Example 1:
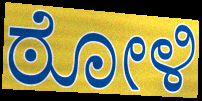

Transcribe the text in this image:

ಠೋಳಿ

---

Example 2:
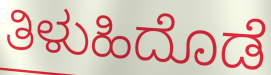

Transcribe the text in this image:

ತಿಳುಹಿದೊಡೆ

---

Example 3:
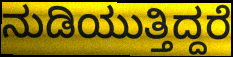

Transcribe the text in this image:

ನುಡಿಯುತ್ತಿದ್ದರೆ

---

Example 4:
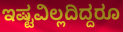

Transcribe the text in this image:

ಇಷ್ಟವಿಲ್ಲದಿದ್ದರೂ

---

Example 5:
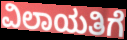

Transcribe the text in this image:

ವಿಲಾಯತಿಗೆ